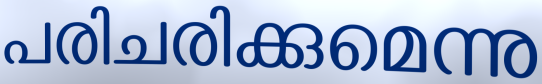
പരിചരിക്കുമെന്നു